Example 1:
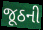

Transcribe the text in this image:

જૂઠની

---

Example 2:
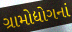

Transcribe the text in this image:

ગ્રામોદ્યોગનાં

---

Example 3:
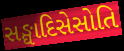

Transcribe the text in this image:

સઙ્ઘાદિસેસોતિ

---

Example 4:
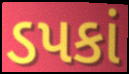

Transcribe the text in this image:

ડપકાં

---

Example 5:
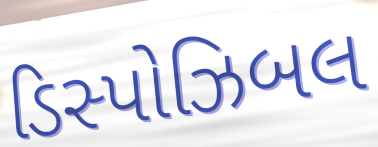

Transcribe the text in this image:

ડિસ્પોઝિબલ